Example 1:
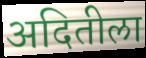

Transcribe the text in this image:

अदितीला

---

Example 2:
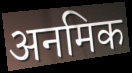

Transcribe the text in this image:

अनमिक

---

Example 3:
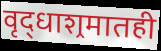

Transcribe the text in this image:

वृद्धाश्रमातही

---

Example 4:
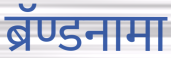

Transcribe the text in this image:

ब्रॅण्डनामा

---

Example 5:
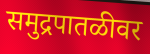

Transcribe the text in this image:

समुद्रपातळीवर